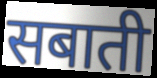
सबाती